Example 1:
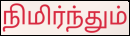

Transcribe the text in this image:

நிமிர்ந்தும்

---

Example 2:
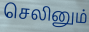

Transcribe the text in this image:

செலினும்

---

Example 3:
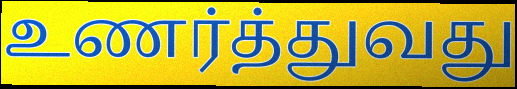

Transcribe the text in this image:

உணர்த்துவது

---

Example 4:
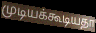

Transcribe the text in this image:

முடியக்கூடியதா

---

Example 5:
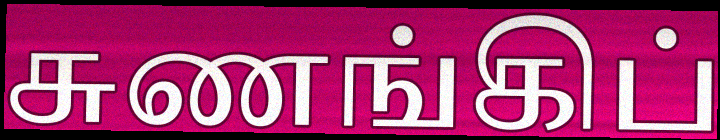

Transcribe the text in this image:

சுணங்கிப்